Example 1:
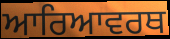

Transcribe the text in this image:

ਆਰਿਆਵਰਥ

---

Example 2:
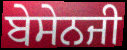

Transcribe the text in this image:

ਬੇਸੇਨਜੀ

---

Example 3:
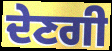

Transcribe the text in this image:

ਦੇਣਗੀ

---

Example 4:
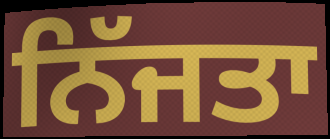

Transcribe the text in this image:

ਨਿੱਜਤਾ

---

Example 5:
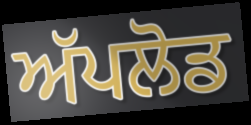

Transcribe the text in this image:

ਅੱਪਲੋਡ